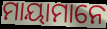
ମାୟାମାନେ